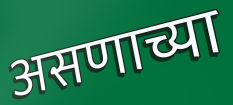
असणाच्या